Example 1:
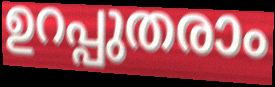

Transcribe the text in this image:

ഉറപ്പുതരാം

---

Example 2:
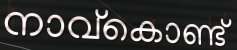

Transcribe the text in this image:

നാവ്കൊണ്ട്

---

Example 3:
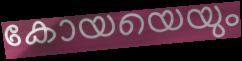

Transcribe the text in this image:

കോയയെയും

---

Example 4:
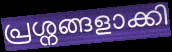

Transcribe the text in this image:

പ്രശ്നങ്ങളാക്കി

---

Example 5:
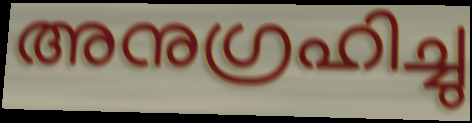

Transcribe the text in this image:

അനുഗ്രഹിച്ചു